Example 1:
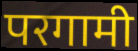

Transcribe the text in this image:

परगामी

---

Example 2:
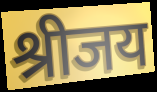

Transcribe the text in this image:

श्रीजय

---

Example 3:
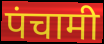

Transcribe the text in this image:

पंचामी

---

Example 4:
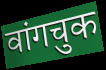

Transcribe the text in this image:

वांगचुक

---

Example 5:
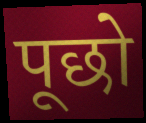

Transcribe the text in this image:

पूछो